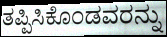
ತಪ್ಪಿಸಿಕೊಂಡವರನ್ನು